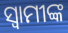
ସ୍ଵାମୀଙ୍କ